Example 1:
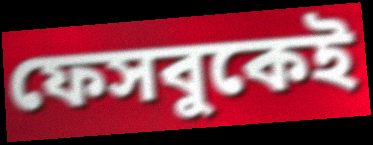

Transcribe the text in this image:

ফেসবুকেই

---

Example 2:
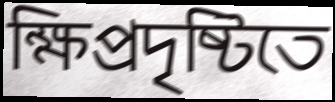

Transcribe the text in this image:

ক্ষিপ্রদৃষ্টিতে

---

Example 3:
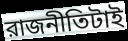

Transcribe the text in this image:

রাজনীতিটাই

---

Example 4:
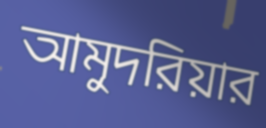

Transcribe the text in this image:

আমুদরিয়ার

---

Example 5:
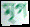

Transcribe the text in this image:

মৃগ